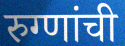
रुग्णांची